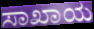
ಸಾಖಾಯ